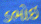
ડભોઇ